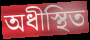
অধীস্থিত